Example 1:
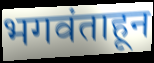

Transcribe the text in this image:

भगवंताहून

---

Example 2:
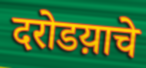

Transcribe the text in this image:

दरोडय़ाचे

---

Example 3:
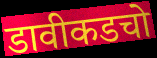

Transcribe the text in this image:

डावीकडचो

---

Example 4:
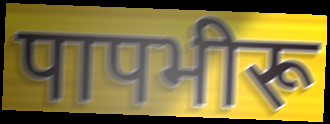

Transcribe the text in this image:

पापभीरू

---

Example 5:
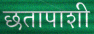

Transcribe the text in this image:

छतापाशी